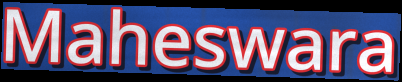
Maheswara